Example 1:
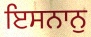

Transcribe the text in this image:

ਇਸਨਾਨੁ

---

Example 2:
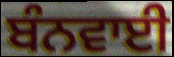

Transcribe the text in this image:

ਬੰਨਵਾਈ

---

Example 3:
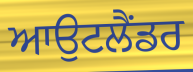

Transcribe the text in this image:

ਆਉਟਲੈਂਡਰ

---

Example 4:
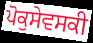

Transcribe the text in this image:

ਪੋਕੁਸੇਵਸਕੀ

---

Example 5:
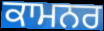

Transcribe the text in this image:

ਕਾਮਨਰ